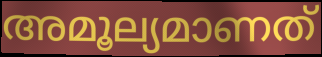
അമൂല്യമാണത്